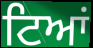
ਟਿਆਂ